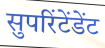
सुपरिंटेंडेंट